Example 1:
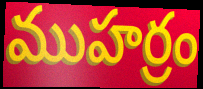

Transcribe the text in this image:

ముహర్రం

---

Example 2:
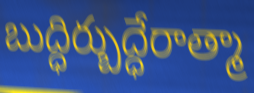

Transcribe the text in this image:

బుద్ధిర్బుద్ధేరాత్మా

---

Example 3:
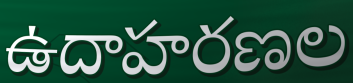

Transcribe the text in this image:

ఉదాహరణల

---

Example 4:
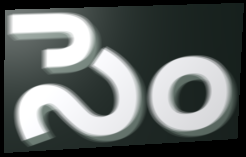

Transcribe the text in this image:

సెం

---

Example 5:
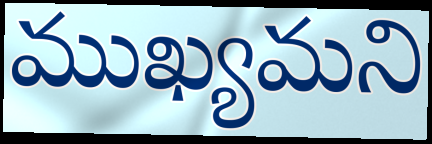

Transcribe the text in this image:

ముఖ్యమని